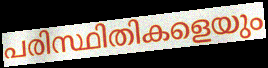
പരിസ്ഥിതികളെയും